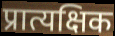
प्रात्यक्षिक